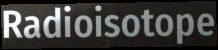
Radioisotope